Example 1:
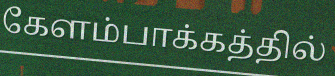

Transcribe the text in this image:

கேளம்பாக்கத்தில்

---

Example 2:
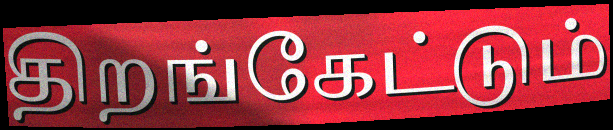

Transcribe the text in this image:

திறங்கேட்டும்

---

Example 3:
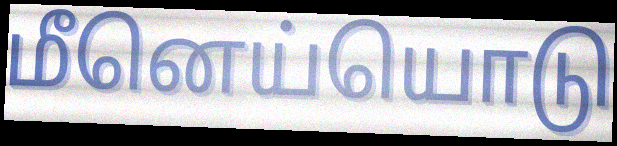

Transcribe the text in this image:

மீனெய்யொடு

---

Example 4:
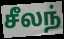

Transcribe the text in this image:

சீலந்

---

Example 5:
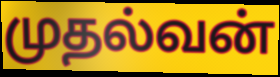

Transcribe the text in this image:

முதல்வன்